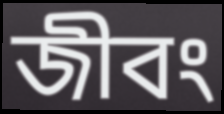
জীবং